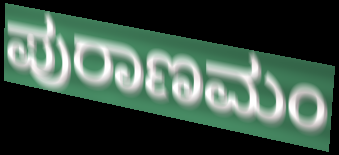
ಪುರಾಣಮಂ